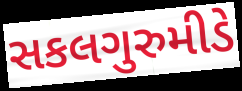
સકલગુરુમીડે